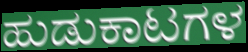
ಹುಡುಕಾಟಗಳ